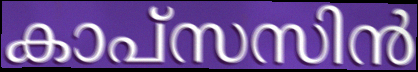
കാപ്സസിൻ